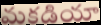
మకడియా